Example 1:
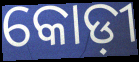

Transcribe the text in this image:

କୋଡ଼ୀ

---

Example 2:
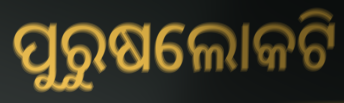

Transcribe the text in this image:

ପୁରୁଷଲୋକଟି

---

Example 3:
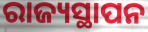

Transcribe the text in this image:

ରାଜ୍ୟସ୍ଥାପନ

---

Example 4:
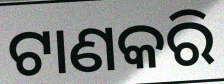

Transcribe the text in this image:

ଟାଣକରି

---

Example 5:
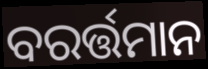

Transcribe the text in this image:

ବରର୍ତ୍ତମାନ